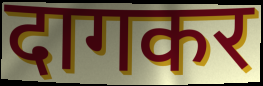
दागकर